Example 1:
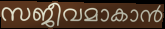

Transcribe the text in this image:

സജീവമാകാൻ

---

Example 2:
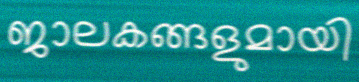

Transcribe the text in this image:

ജാലകങ്ങളുമായി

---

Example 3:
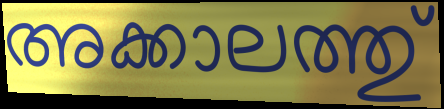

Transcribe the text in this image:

അക്കാലത്തു്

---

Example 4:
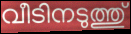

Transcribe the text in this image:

വീടിനടുത്തു്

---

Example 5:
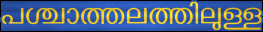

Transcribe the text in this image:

പശ്ചാത്തലത്തിലുള്ള